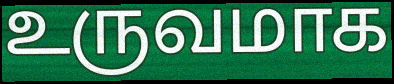
உருவமாக